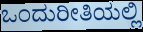
ಒಂದುರೀತಿಯಲ್ಲಿ